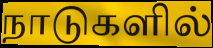
நாடுகளில்